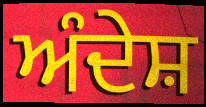
ਅੰਦੇਸ਼